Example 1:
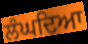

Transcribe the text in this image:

ਲੰਘਦਿਆ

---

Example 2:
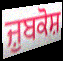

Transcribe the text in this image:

ਜ਼ੁਬਕੋਸ਼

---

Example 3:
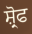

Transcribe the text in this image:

ਸ਼੍ਰੋਫ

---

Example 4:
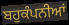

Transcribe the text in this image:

ਬਹੁਕੰਪਨੀਆਂ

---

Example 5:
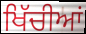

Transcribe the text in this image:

ਖਿੱਚੀਆਂ